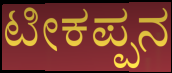
ಟೀಕಪ್ಪನ